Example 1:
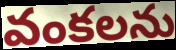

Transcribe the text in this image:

వంకలను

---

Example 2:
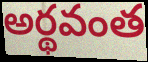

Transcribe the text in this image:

అర్థవంత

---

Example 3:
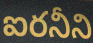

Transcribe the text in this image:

ఐరనీని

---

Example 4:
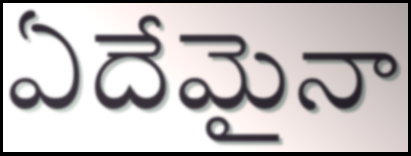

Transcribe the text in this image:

ఏదేమైనా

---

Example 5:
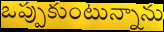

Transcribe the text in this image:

ఒప్పుకుంటున్నాను